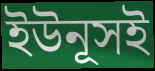
ইউনূসই